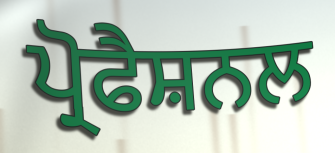
ਪ੍ਰੋਫੈਸ਼ਨਲ